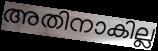
അതിനാകില്ല